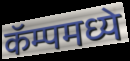
कॅम्पमध्ये